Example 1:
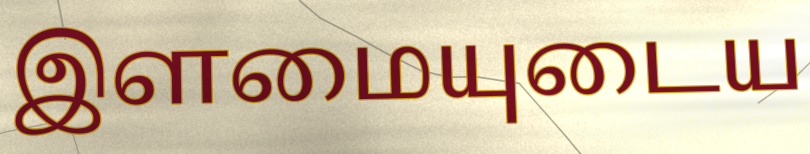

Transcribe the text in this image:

இளமையுடைய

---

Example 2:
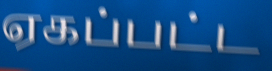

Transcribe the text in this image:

ஏகப்பட்ட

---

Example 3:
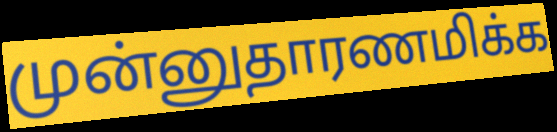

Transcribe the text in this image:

முன்னுதாரணமிக்க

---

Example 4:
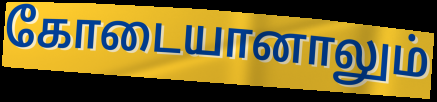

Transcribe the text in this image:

கோடையானாலும்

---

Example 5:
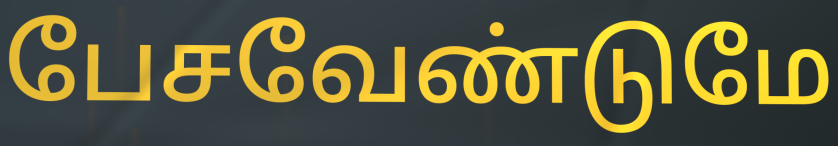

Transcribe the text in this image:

பேசவேண்டுமே